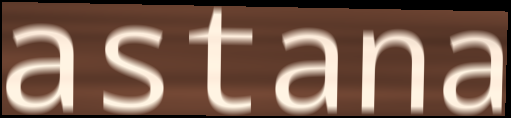
astana